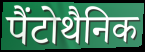
पैंटोथैनिक